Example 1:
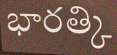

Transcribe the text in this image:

భారత్కి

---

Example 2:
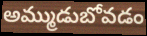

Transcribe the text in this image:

అమ్ముడుబోవడం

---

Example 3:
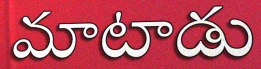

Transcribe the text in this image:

మాటాడు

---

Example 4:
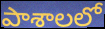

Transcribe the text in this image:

పాశాలలో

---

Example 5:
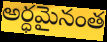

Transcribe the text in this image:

అర్ధమైనంత